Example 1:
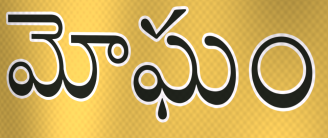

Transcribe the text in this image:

మోఘం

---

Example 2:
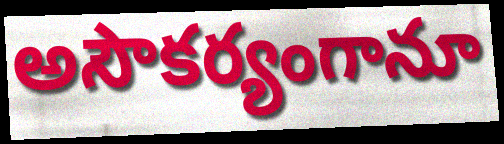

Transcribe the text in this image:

అసౌకర్యంగానూ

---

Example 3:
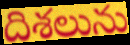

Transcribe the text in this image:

దిశలును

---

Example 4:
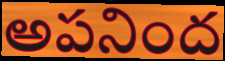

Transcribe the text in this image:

అపనింద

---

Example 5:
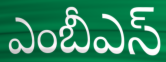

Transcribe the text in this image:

ఎంబీఎస్